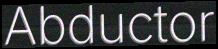
Abductor